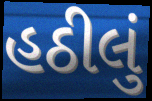
હઠીલું